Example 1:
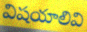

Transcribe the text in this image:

విషయాలివి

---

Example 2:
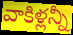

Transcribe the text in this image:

వాకిళ్లన్నీ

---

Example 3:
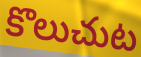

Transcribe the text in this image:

కొలుచుట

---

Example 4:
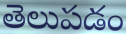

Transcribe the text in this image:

తెలుపడం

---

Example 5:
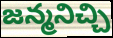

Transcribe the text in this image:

జన్మనిచ్చి